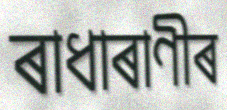
ৰাধাৰাণীৰ